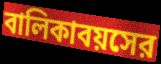
বালিকাবয়সের